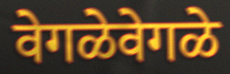
वेगळेवेगळे